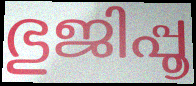
ഭുജിപ്പൂ